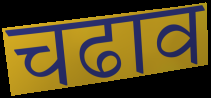
चढाव